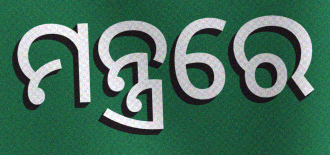
ମନ୍ତ୍ରରେ